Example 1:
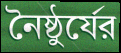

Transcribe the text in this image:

নৈষ্ঠুর্যের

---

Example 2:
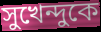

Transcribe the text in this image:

সুখেন্দুকে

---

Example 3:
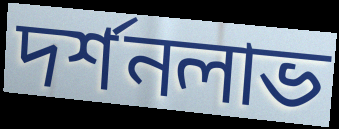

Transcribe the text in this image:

দর্শনলাভ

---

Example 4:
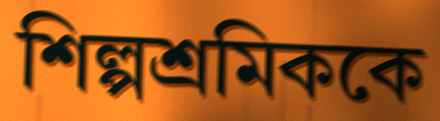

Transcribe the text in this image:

শিল্পশ্রমিককে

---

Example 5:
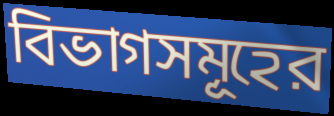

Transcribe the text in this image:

বিভাগসমূহের